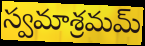
స్వమాశ్రమమ్